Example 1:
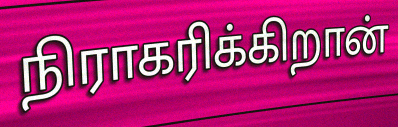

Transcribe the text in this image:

நிராகரிக்கிறான்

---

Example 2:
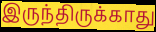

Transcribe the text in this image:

இருந்திருக்காது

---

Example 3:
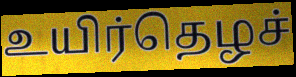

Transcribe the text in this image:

உயிர்தெழச்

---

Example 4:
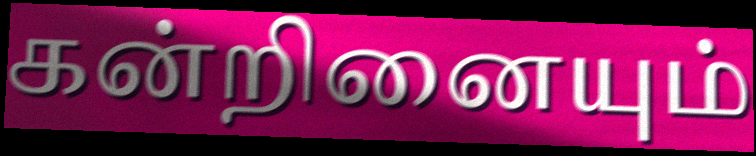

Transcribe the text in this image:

கன்றினையும்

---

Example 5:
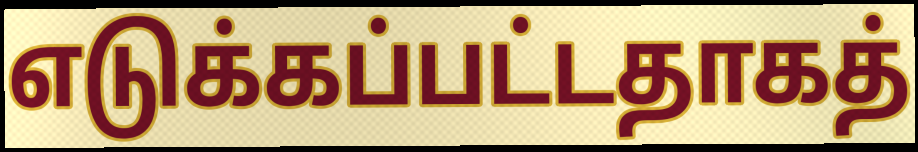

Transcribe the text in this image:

எடுக்கப்பட்டதாகத்